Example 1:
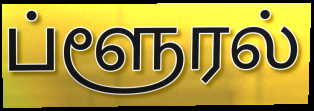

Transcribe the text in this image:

ப்ளூரல்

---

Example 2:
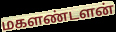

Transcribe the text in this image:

மகளண்டளன்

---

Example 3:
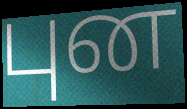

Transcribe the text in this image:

புன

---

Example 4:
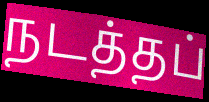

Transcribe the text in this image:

நடத்தப்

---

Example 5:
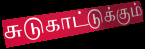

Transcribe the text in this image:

சுடுகாட்டுக்கும்